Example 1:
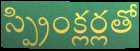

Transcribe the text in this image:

స్ప్రింక్లర్లతో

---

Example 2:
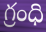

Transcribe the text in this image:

గ్రంధి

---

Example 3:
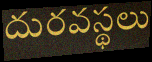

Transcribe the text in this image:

దురవస్థలు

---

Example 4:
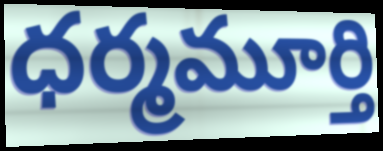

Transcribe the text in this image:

ధర్మమూర్తి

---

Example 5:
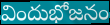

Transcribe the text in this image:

విందుభోజనం